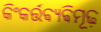
କିଂକର୍ତ୍ତଵ୍ଯଵିମୂଢ଼